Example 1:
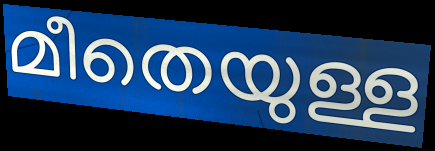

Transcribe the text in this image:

മീതെയുള്ള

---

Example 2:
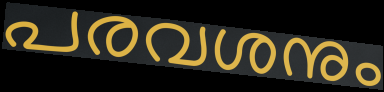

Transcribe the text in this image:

പരവശനും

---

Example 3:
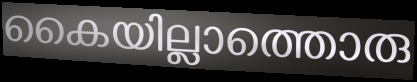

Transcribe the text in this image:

കൈയില്ലാത്തൊരു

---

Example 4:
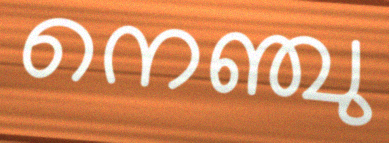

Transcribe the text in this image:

നെഞ്ചു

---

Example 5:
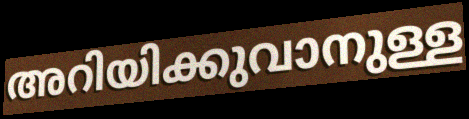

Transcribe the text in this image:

അറിയിക്കുവാനുള്ള